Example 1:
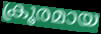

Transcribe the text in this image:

ക്രൂരമായ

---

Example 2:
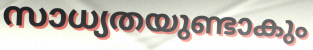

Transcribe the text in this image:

സാധ്യതയുണ്ടാകും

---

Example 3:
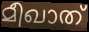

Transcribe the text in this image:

മീഖാത്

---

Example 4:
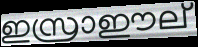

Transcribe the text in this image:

ഇസ്രാഈല്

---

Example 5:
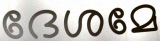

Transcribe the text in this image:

ദേശമേ